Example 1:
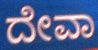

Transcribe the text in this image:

ದೇವಾ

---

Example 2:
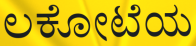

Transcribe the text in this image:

ಲಕೋಟೆಯ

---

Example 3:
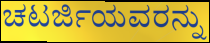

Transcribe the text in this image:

ಚಟರ್ಜಿಯವರನ್ನು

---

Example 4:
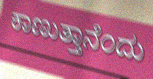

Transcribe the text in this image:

ಕಾಣುತ್ತಾನೆಂದು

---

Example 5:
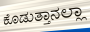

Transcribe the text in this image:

ಕೊಡುತ್ತಾನಲ್ಲಾ